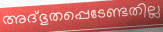
അദ്ഭുതപ്പെടേണ്ടതില്ല